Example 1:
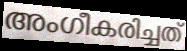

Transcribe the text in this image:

അംഗീകരിച്ചത്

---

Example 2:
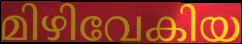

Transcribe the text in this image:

മിഴിവേകിയ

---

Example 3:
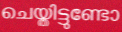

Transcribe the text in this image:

ചെയ്തിട്ടുണ്ടോ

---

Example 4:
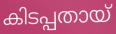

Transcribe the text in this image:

കിടപ്പതായ്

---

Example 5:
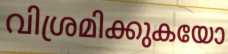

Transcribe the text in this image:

വിശ്രമിക്കുകയോ